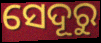
ସେଦୂରୁ